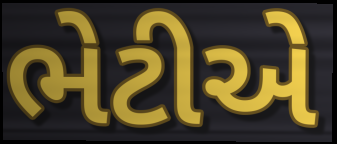
ભેટીએ